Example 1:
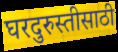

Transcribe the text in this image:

घरदुरुस्तीसाठी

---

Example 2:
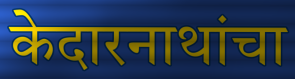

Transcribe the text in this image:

केदारनाथांचा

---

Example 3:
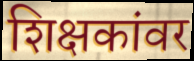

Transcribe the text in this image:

शिक्षकांवर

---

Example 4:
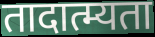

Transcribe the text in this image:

तादात्म्यता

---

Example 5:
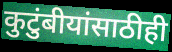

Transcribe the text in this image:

कुटुंबीयांसाठीही